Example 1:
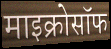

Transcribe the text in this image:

माइक्रोसॉफ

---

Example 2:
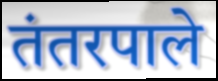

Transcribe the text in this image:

तंतरपाले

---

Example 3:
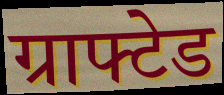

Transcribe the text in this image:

ग्राफ्टेड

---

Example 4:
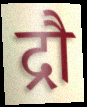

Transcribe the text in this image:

द्रौ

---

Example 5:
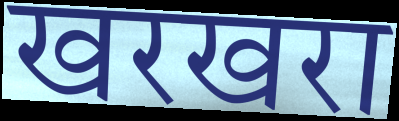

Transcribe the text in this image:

खरखरा